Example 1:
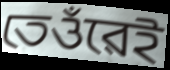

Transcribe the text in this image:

তেওঁৱেই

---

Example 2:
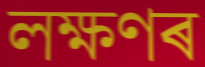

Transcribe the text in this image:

লক্ষণৰ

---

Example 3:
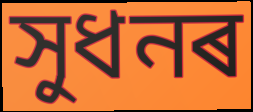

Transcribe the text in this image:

সুধনৰ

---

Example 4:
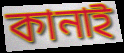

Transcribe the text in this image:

কানাই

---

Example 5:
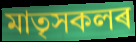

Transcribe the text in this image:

মাতৃসকলৰ